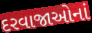
દરવાજાઓનાં